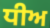
ਧੀਅ